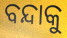
ବନ୍ଦାକୁ